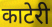
काटेरी